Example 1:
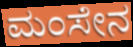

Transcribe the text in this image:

ಮಂಸೇನ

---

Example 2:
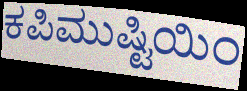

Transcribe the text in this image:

ಕಪಿಮುಷ್ಟಿಯಿಂ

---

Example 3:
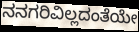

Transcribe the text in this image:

ನನಗರಿವಿಲ್ಲದಂತೆಯೇ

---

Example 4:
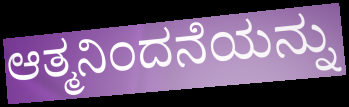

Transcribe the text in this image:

ಆತ್ಮನಿಂದನೆಯನ್ನು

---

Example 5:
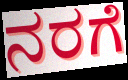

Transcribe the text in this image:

ನರಗೆ